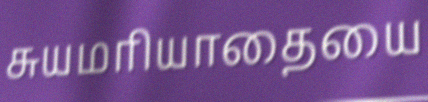
சுயமரியாதையை